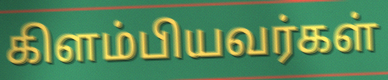
கிளம்பியவர்கள்